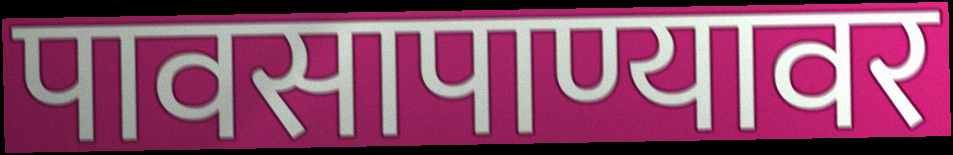
पावसापाण्यावर